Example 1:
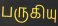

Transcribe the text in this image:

பருகியு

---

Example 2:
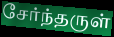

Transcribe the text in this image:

சேர்ந்தருள்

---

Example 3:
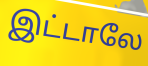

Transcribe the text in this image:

இட்டாலே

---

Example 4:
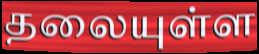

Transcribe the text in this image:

தலையுள்ள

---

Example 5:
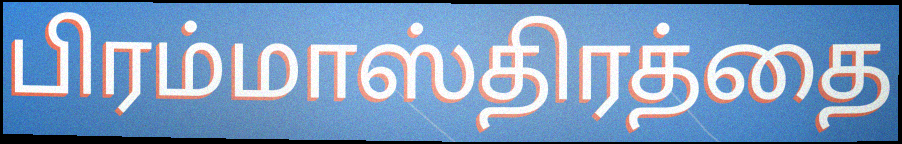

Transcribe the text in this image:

பிரம்மாஸ்திரத்தை